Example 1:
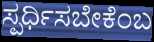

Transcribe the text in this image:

ಸ್ಪರ್ಧಿಸಬೇಕೆಂಬ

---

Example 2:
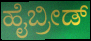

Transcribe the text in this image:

ಹೈಬ್ರೀಡ್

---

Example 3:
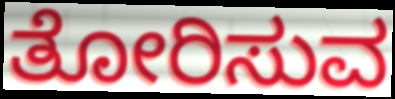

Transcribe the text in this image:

ತೋರಿಸುವ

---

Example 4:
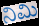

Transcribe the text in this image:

ನಿಮಿ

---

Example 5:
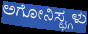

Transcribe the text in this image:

ಅಗೋನಿಸ್ಟ್ಗಳು